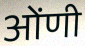
ओंणी